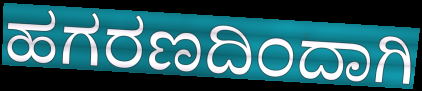
ಹಗರಣದಿಂದಾಗಿ